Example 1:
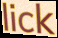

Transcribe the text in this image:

lick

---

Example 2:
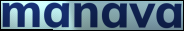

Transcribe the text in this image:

manava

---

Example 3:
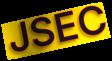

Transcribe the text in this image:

JSEC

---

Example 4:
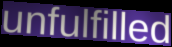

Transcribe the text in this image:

unfulfilled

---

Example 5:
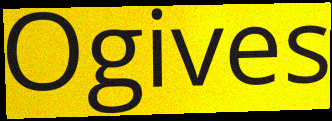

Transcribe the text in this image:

Ogives